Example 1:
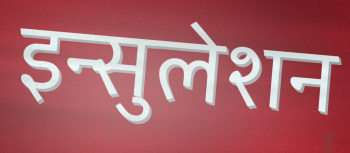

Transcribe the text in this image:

इन्सुलेशन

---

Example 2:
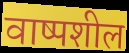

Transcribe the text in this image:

वाष्पशील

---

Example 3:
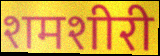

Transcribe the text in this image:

शमशीरी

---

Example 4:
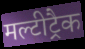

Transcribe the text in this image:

मल्टीट्रैक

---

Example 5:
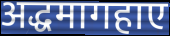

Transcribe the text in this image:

अद्धमागहाए